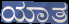
ಯಾತ